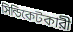
সিন্ডিকেটকারী